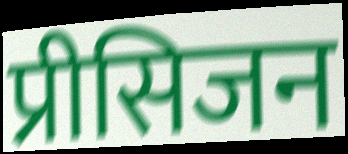
प्रीसिजन